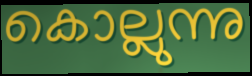
കൊല്ലുന്നു